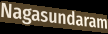
Nagasundaram